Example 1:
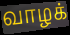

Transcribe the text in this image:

வாழக்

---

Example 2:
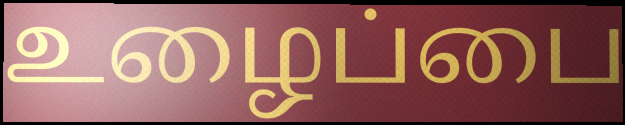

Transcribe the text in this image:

உழைப்பை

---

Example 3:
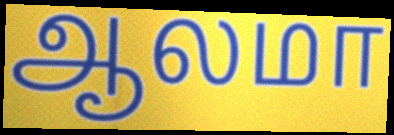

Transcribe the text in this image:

ஆலமா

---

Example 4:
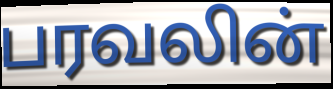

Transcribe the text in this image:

பரவலின்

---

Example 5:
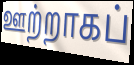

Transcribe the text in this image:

ஊற்றாகப்